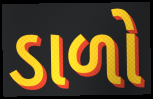
ડાળો